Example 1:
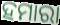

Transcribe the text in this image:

ହମାରା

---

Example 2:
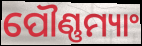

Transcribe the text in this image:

ପୌଣ୍ଣମ୍ୟାଂ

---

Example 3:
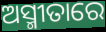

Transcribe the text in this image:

ଅସ୍ମୀତାରେ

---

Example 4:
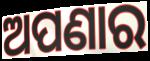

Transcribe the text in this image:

ଅପଣାର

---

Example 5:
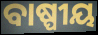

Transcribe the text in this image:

ବାଷ୍ପୀୟ